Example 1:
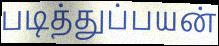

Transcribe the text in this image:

படித்துப்பயன்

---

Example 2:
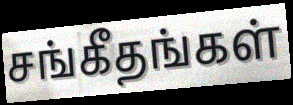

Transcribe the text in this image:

சங்கீதங்கள்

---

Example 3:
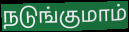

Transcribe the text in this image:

நடுங்குமாம்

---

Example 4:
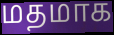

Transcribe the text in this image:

மதமாக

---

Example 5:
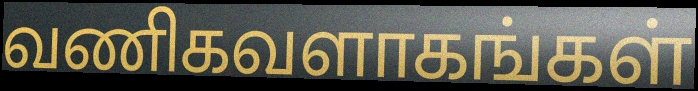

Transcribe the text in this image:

வணிகவளாகங்கள்